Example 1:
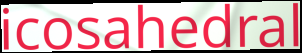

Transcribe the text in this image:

icosahedral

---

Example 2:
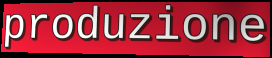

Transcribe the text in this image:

produzione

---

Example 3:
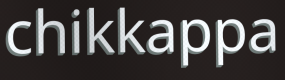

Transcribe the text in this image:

chikkappa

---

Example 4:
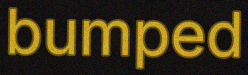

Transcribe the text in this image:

bumped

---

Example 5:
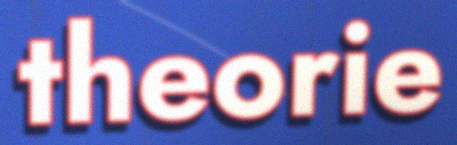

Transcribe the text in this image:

theorie